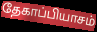
தேகாப்பியாசம்